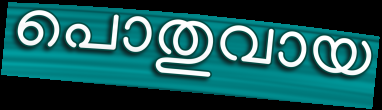
പൊതുവായ